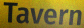
Tavern